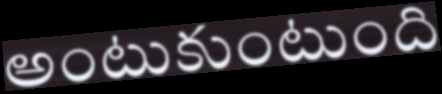
అంటుకుంటుంది